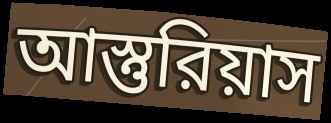
আস্তুরিয়াস